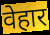
वेहार